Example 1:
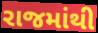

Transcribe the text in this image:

રાજમાંથી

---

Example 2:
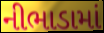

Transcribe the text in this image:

નીભાડામાં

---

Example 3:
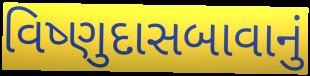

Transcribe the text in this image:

વિષ્ણુદાસબાવાનું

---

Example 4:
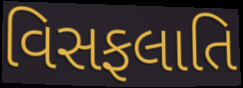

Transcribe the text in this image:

વિસફલાતિ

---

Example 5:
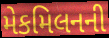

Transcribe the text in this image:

મેકમિલનની